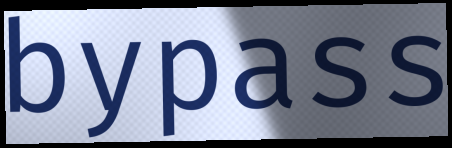
bypass